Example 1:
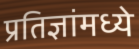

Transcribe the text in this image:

प्रतिज्ञांमध्ये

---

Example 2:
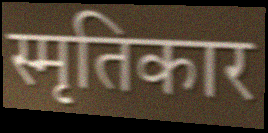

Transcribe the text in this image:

स्मृतिकार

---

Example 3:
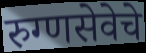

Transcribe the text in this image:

रुग्णसेवेचे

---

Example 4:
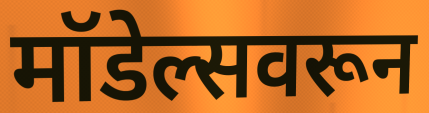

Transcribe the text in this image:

मॉडेल्सवरून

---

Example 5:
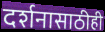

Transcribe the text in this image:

दर्शनासाठीही